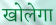
खोलेगा